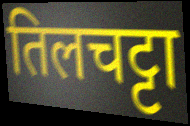
तिलचट्टा